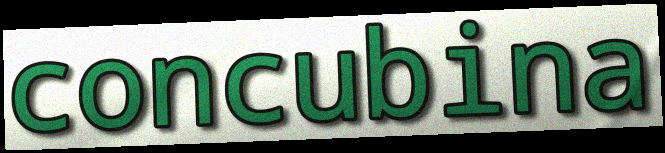
concubina